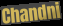
Chandni